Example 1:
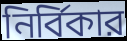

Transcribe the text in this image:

নির্বিকার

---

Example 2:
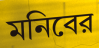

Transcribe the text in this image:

মনিবের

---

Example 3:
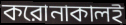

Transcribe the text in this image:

করোনাকালই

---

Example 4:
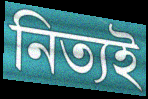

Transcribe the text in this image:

নিত্যই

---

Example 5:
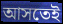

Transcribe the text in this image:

আসতেই